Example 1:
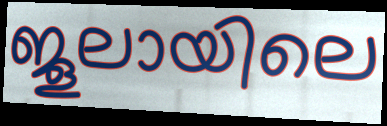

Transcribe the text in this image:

ജൂലായിലെ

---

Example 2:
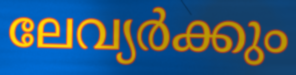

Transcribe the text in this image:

ലേവ്യർക്കും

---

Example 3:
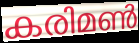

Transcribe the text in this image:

കരിമൺ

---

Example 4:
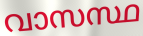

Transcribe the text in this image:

വാസസ്ഥ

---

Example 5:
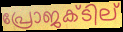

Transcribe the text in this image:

പ്രോജക്ടില്